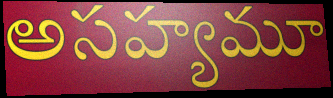
అసహ్యమూ